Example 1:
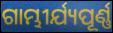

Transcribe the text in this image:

ଗାମ୍ଭୀର୍ଯ୍ୟପୂର୍ଣ୍ଣ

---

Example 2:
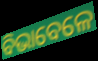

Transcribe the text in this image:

ବିଭାବେଳେ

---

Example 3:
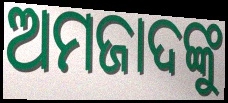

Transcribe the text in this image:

ଅମଜାଦଙ୍କୁ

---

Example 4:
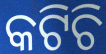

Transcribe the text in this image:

କଟିଚି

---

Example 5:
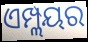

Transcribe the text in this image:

ଏମ୍ପ୍ଲୟର